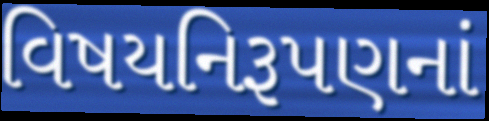
વિષયનિરૂપણનાં